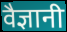
वैज्ञानी